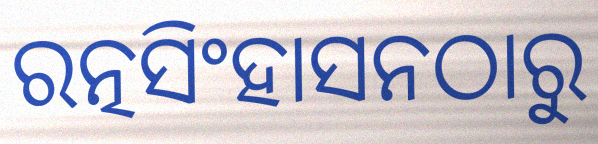
ରତ୍ନସିଂହାସନଠାରୁ